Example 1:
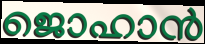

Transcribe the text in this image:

ജൊഹാൻ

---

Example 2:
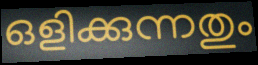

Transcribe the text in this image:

ഒളിക്കുന്നതും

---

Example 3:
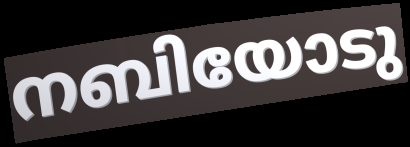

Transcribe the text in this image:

നബിയോടു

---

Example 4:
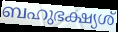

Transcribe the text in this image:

ബഹുഭക്ഷ്യശ്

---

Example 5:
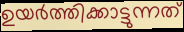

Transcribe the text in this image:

ഉയർത്തിക്കാട്ടുന്നത്